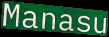
Manasu